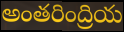
అంతరింద్రియ